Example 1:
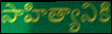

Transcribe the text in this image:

సాహిత్యానికి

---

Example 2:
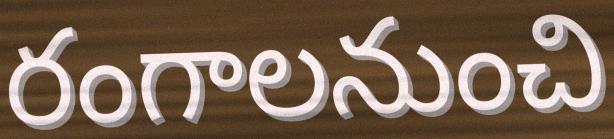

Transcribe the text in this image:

రంగాలనుంచి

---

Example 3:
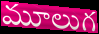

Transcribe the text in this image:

మూలుగ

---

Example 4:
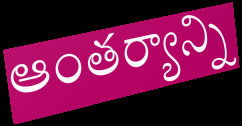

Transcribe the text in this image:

ఆంతర్యాన్ని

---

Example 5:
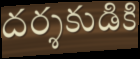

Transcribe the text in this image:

దర్శకుడికి